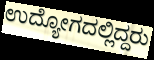
ಉದ್ಯೋಗದಲ್ಲಿದ್ದರು